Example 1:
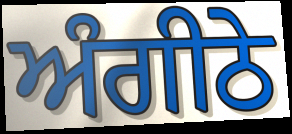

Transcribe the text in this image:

ਅੰਗੀਠੇ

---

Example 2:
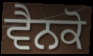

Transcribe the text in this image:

ਵੈਨਕੋ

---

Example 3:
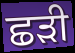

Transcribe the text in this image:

ਛੜੀ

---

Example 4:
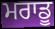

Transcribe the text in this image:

ਮਰਾਡੂ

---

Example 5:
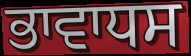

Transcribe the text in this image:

ਭਾਵਾਧਸ